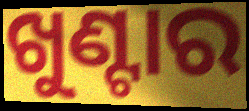
ଖୁଣ୍ଟାର